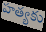
హత్యకు